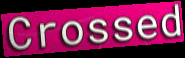
Crossed